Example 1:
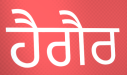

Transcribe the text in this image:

ਹੈਗੈਰ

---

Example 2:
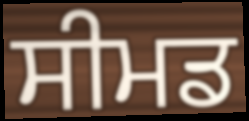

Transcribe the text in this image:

ਸੀਮਡ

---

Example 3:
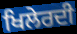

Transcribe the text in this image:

ਖਿਲੇਰਦੀ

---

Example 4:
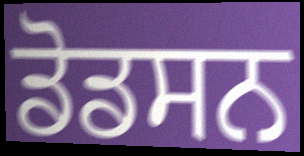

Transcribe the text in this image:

ਡੋਡਸਨ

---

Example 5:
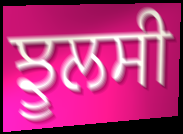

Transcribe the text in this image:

ਝੂਲਸੀ